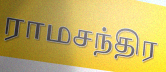
ராமசந்திர